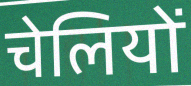
चेलियों